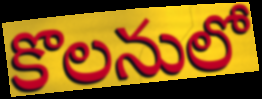
కొలనులో